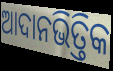
ଆଦାନଭିତ୍ତିକ